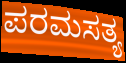
ಪರಮಸತ್ಯ